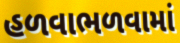
હળવાભળવામાં